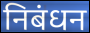
निबंधन